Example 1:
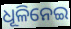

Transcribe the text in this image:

ଧୂଳିନେଇ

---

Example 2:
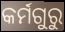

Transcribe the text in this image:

କର୍ମଗୁରୁ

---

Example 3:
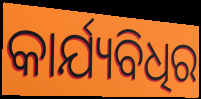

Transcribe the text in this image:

କାର୍ଯ୍ୟବିଧିର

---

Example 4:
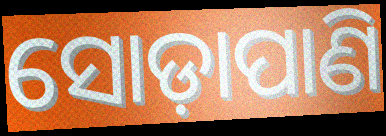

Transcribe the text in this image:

ସୋଡ଼ାପାଣି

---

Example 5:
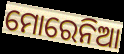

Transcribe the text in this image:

ମୋରେନିଆ